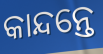
କାନ୍ଦନ୍ତେ